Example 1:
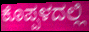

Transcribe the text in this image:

ಕೊಪ್ಪಳದಲ್ಲಿ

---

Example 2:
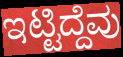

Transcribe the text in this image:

ಇಟ್ಟಿದ್ದೆವು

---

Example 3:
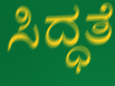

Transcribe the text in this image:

ಸಿದ್ಧತೆ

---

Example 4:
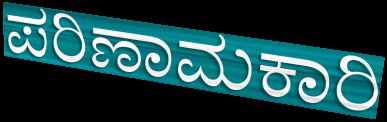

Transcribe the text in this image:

ಪರಿಣಾಮಕಾರಿ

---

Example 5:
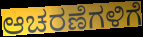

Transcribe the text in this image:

ಆಚರಣೆಗಳಿಗೆ